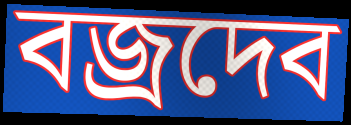
বজ্রদেব